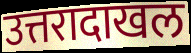
उत्तरादाखल